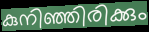
കുനിഞ്ഞിരിക്കും